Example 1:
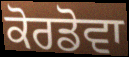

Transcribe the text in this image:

ਕੋਰਡੋਵਾ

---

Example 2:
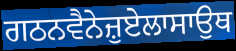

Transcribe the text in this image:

ਗਠਨਵੈਨੇਜ਼ੁਏਲਾਸਾਉਥ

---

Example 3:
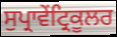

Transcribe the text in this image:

ਸੁਪ੍ਰਾਵੇਂਟ੍ਰਿਕੂਲਰ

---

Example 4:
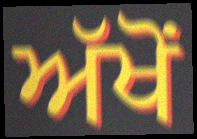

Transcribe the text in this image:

ਅੱਖੋਂ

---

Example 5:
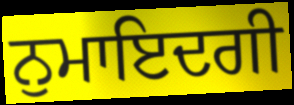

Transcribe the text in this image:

ਨੁਮਾਇਦਗੀ